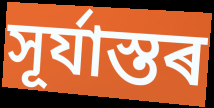
সূৰ্যাস্তৰ